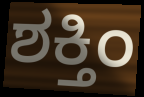
ಶಕ್ತಿಂ